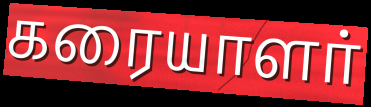
கரையாளர்